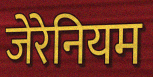
जेरेनियम